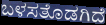
ಬಳಸತೊಡಗಿದೆ